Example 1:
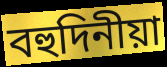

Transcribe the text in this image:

বহুদিনীয়া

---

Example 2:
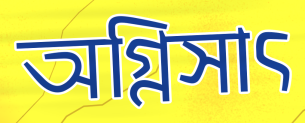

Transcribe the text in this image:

অগ্নিসাৎ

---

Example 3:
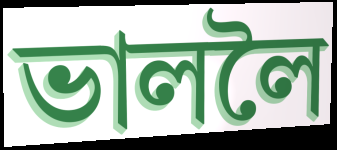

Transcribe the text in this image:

ভাললৈ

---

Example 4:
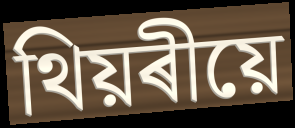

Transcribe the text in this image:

থিয়ৰীয়ে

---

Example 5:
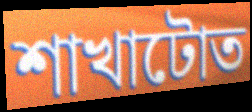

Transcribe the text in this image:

শাখাটোত